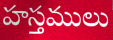
హస్తములు